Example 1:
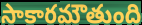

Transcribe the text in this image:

సాకారమౌతుంది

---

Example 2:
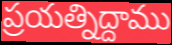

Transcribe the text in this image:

ప్రయత్నిద్దాము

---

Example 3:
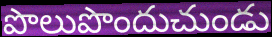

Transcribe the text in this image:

పొలుపొందుచుండు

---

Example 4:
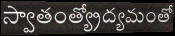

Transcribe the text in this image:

స్వాతంత్య్రోద్యమంతో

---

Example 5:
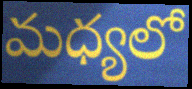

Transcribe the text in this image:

మధ్యలో